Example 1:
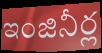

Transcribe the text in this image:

ఇంజినీర్ల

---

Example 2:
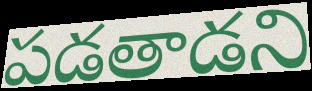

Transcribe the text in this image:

పడతాడని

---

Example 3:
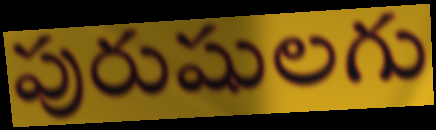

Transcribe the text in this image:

పురుషులగు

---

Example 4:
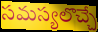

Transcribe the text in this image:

సమస్యలొచ్చే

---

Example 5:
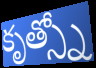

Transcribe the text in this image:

కృత్స్నో